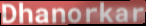
Dhanorkar